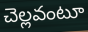
చెల్లవంటూ